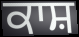
ਕਾਸ਼